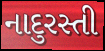
નાદુરસ્તી